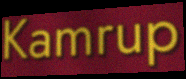
Kamrup